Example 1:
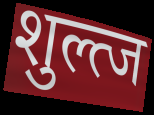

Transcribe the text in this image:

शुल्त्ज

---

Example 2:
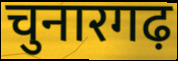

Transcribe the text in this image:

चुनारगढ़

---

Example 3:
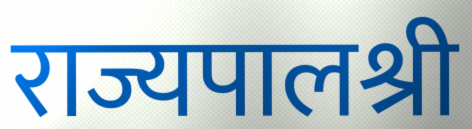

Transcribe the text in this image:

राज्यपालश्री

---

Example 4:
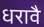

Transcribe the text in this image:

धरावै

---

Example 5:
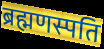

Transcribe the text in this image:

ब्रह्मणस्पति